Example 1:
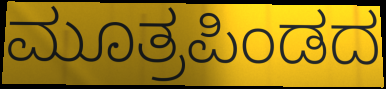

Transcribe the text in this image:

ಮೂತ್ರಪಿಂಡದ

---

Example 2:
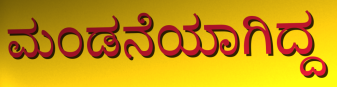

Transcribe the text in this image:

ಮಂಡನೆಯಾಗಿದ್ದ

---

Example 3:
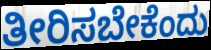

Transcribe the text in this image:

ತೀರಿಸಬೇಕೆಂದು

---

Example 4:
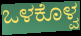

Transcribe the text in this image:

ಒಳಕೊಳ್ವ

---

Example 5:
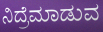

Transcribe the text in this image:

ನಿದ್ರೆಮಾಡುವ